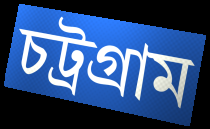
চট্রগ্রাম